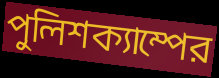
পুলিশক্যাম্পের